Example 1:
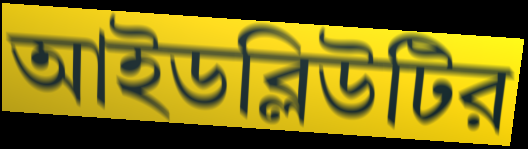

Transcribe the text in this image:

আইডব্লিউটির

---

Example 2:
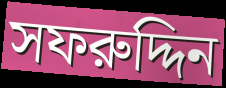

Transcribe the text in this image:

সফরুদ্দিন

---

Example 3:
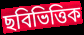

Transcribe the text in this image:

ছবিভিত্তিক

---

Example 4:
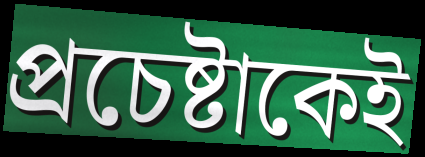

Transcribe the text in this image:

প্রচেষ্টাকেই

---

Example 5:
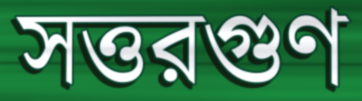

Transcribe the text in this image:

সত্তরগুণ